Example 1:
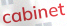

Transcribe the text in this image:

cabinet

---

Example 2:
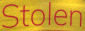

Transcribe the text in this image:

Stolen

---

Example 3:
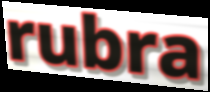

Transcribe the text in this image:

rubra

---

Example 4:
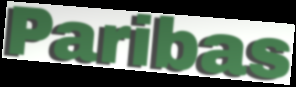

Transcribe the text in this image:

Paribas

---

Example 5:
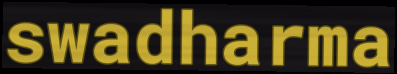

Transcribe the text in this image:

swadharma